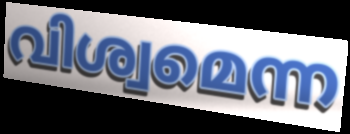
വിശ്വമെന്ന